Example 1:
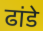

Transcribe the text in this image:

ढांडे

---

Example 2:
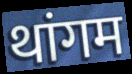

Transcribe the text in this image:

थांगम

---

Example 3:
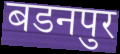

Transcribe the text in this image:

बडनपुर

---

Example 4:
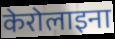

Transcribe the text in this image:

केरोलाइना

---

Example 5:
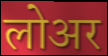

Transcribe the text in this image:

लोअर